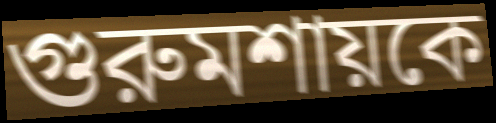
গুরুমশায়কে